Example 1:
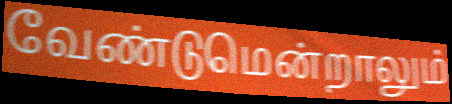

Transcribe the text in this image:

வேண்டுமென்றாலும்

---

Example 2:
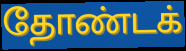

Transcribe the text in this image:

தோண்டக்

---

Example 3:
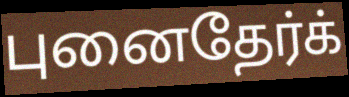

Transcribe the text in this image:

புனைதேர்க்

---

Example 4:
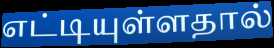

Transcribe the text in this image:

எட்டியுள்ளதால்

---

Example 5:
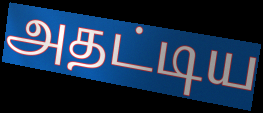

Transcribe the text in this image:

அதட்டிய